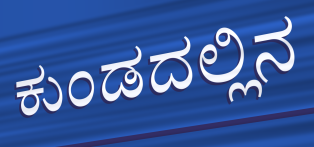
ಕುಂಡದಲ್ಲಿನ